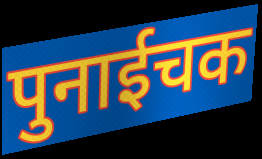
पुनाईचक